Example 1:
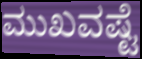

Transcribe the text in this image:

ಮುಖವಷ್ಟೆ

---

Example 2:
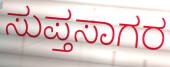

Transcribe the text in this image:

ಸುಪ್ತಸಾಗರ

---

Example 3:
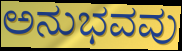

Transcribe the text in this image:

ಅನುಭವವು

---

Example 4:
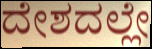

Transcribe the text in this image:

ದೇಶದಲ್ಲೇ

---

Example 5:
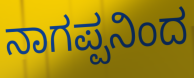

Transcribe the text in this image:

ನಾಗಪ್ಪನಿಂದ